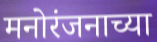
मनोरंजनाच्या